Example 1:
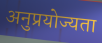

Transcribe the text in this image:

अनुप्रयोज्यता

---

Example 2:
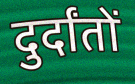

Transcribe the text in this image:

दुर्दांतों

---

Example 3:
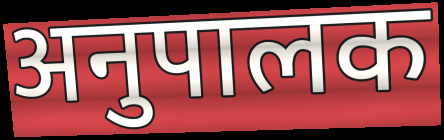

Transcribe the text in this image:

अनुपालक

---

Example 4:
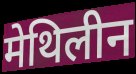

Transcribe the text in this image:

मेथिलीन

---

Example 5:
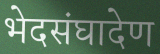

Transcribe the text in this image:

भेदसंघादेण